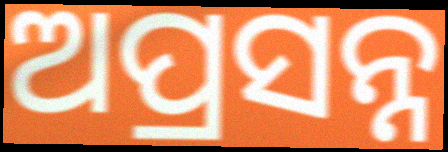
ଅପ୍ରସନ୍ନ